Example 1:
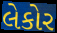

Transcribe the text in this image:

લેકોર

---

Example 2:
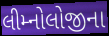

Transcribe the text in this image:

લીમ્નોલોજીના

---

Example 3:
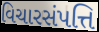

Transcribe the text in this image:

વિચારસંપત્તિ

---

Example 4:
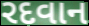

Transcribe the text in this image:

રદવાન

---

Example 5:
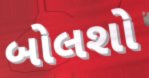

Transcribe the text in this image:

બોલશો